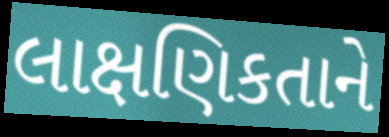
લાક્ષણિકતાને